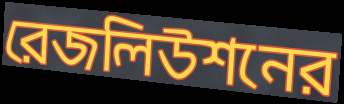
রেজলিউশনের